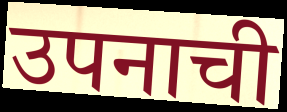
उपनाची